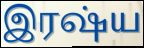
இரஷ்ய